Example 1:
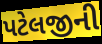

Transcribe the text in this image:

પટેલજીની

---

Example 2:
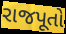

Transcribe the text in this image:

રાજપૂતો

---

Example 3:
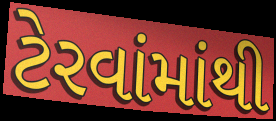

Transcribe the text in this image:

ટેરવાંમાંથી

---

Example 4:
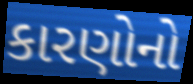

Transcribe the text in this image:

કારણોનો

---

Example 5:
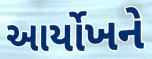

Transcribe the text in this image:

આર્યોખને